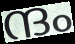
ന്ദം